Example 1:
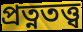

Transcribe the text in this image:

প্রত্নতত্ত্ব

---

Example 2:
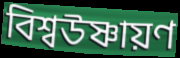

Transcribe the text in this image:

বিশ্বউষ্ণায়ণ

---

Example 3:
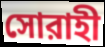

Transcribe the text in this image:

সোরাহী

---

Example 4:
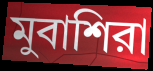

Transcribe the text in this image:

মুবাশিরা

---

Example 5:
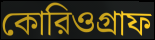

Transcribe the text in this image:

কোরিওগ্রাফ